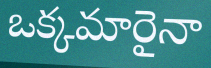
ఒక్కమారైనా